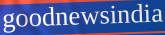
goodnewsindia